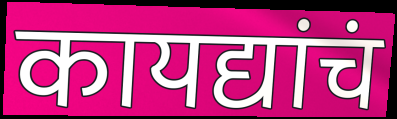
कायद्यांचं